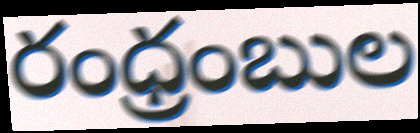
రంధ్రంబుల